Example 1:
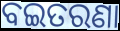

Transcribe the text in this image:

ବଇତରଣା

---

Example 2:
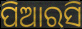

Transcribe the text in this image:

ପିଆରସି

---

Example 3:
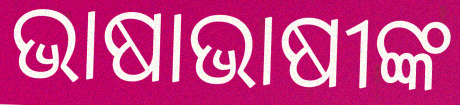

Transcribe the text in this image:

ଭାଷାଭାଷୀଙ୍କ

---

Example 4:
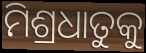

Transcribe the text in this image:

ମିଶ୍ରଧାତୁକୁ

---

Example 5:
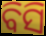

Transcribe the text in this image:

ବିସି